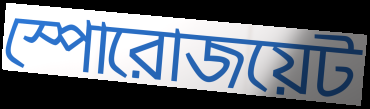
স্পোরোজয়েট